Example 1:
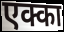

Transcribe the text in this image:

एक्का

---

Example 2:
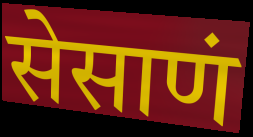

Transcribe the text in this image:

सेसाणं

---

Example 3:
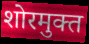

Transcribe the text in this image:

शोरमुक्त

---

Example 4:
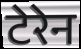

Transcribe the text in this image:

टेरेन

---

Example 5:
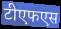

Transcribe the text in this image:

टीएफएस